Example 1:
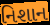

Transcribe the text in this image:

નિશાન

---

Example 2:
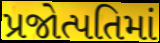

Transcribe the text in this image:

પ્રજોત્પતિમાં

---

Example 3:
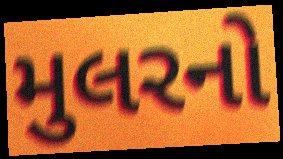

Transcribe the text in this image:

મુલરનો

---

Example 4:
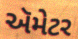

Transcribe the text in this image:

ઍમેટર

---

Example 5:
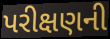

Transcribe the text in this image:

પરીક્ષણની